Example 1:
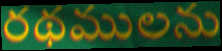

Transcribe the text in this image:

రథములను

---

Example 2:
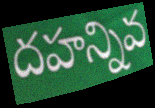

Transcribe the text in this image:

దహన్నివ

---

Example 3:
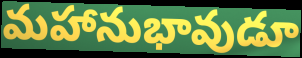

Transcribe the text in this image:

మహానుభావుడూ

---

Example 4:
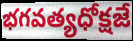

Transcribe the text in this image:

భగవత్యధోక్షజే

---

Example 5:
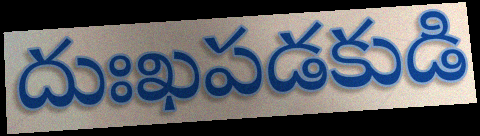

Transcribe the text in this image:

దుఃఖపడకుడి